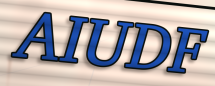
AIUDF